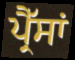
ਪ੍ਰੈੱਸਾਂ